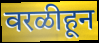
वरळीहून